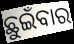
ଛୁଇଁବାର